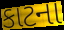
કાટના